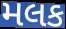
મલક